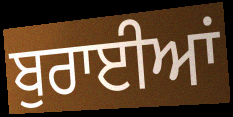
ਬੁਰਾਈਆਂ